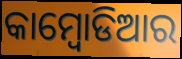
କାମ୍ବୋଡିଆର